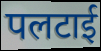
पलटाई